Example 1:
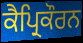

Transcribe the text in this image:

ਕੈਪ੍ਰਿਕੌਰਨ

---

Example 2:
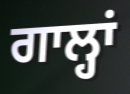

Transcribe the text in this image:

ਗਾਲ੍ਹਾਂ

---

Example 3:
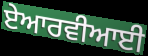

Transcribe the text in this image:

ਏਆਰਵੀਆਈ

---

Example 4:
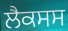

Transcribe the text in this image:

ਲੈਕਸਸ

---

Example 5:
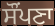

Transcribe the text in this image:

ਸੌਂਪਣਾ